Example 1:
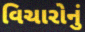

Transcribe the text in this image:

વિચારોનું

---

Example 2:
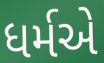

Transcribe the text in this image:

ધર્મએ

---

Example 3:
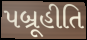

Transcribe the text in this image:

પબ્રૂહીતિ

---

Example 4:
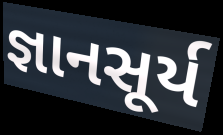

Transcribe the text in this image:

જ્ઞાનસૂર્ય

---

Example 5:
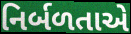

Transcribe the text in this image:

નિર્બળતાએ